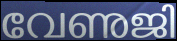
വേണുജി